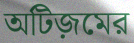
অটিজ়মের